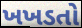
ખખડતો